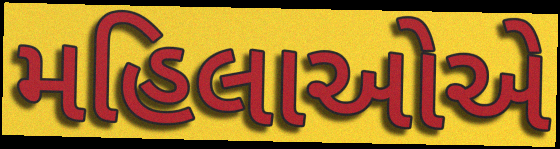
મહિલાઓએ